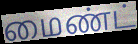
மைண்ட்